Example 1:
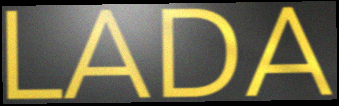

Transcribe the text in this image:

LADA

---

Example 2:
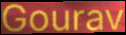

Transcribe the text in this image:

Gourav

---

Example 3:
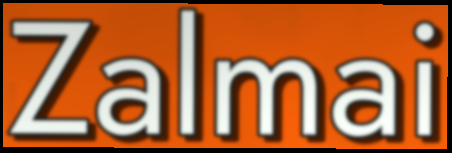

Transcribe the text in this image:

Zalmai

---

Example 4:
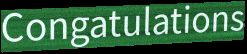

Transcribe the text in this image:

Congatulations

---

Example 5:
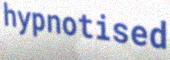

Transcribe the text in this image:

hypnotised